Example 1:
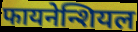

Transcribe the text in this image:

फायनेन्शियल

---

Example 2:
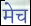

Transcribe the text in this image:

मेच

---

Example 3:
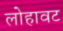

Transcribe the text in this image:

लोहावट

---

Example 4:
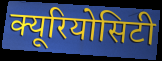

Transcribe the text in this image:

क्यूरियोसिटी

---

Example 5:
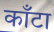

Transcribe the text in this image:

काँटा